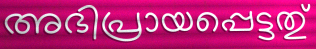
അഭിപ്രായപ്പെട്ടതു്